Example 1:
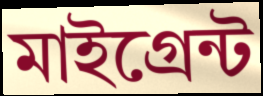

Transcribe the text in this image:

মাইগ্রেন্ট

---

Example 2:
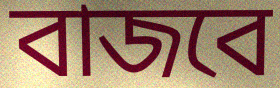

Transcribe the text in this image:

বাজবে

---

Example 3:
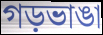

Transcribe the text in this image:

গড়ভাঙা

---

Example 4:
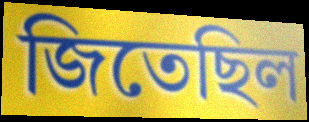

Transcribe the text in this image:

জিতেছিল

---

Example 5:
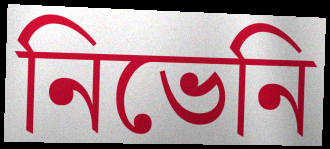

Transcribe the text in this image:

নিভেনি